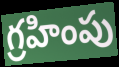
గ్రహింపు